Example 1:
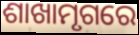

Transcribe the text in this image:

ଶାଖାମୃଗରେ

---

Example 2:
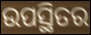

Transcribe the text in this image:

ଉପସ୍ଥିତର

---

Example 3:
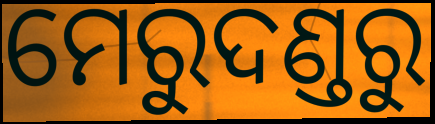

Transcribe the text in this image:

ମେରୁଦଣ୍ଡରୁ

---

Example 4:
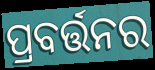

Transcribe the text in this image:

ପ୍ରବର୍ତ୍ତନର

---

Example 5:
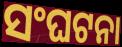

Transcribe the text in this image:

ସଂଘଟନା